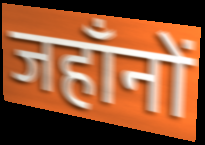
जहाँनों